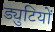
ड्युटियों